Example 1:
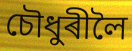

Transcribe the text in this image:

চৌধুৰীলৈ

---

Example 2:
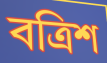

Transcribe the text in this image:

বত্ৰিশ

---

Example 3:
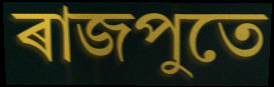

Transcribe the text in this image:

ৰাজপুতে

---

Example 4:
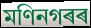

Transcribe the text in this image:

মণিনগৰৰ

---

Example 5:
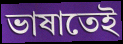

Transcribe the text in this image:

ভাষাতেই